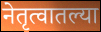
नेतृत्वातल्या